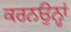
ਕਰਨਉਨ੍ਹਾਂ